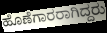
ಹೊಣೆಗಾರರಾಗಿದ್ದರು